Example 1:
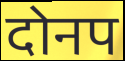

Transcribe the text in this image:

दोनप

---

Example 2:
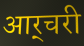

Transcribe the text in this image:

आर्चरी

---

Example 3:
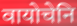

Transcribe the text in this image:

वायोचेनि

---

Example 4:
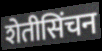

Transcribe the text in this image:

शेतीसिंचन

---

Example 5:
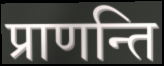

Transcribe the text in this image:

प्राणन्ति